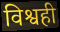
विश्वही